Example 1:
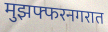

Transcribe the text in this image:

मुझफ्फरनगरात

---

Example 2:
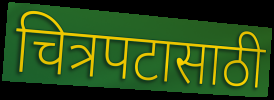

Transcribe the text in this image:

चित्रपटासाठी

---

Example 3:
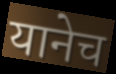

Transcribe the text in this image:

यानेच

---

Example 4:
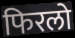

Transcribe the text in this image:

फिरलो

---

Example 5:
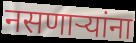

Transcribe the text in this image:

नसणाऱ्यांना